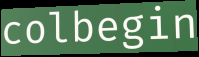
colbegin